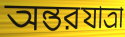
অন্তরযাত্রা